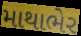
માથાભેર